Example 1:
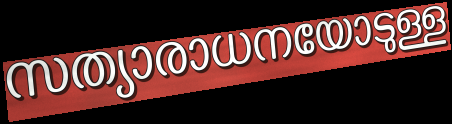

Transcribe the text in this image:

സത്യാരാധനയോടുള്ള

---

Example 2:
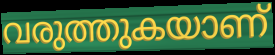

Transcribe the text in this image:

വരുത്തുകയാണ്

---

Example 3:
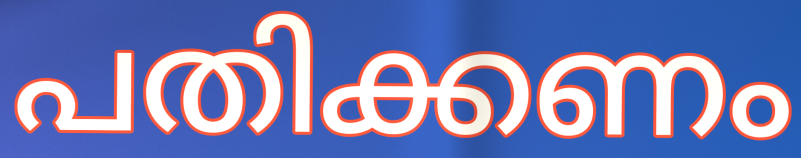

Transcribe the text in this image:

പതിക്കണം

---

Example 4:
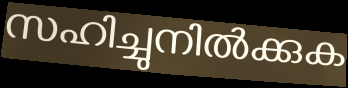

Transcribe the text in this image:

സഹിച്ചുനിൽക്കുക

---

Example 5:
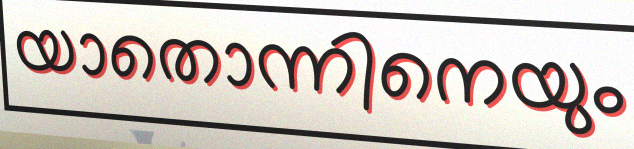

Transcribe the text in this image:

യാതൊന്നിനെയും